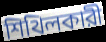
শিথিলকারী